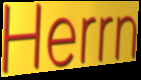
Herrn